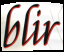
blir